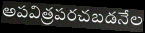
అపవిత్రపరచబడనేల